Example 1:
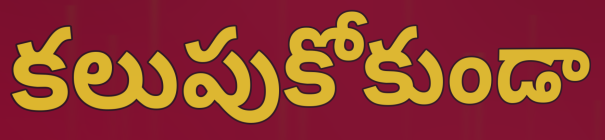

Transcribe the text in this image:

కలుపుకోకుండా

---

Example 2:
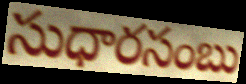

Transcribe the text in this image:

సుధారసంబు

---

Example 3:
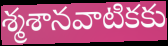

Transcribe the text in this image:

శ్మశానవాటికకు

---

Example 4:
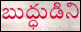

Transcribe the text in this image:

బుద్ధుడిని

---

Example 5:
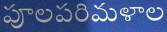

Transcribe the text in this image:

పూలపరిమళాల